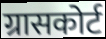
ग्रासकोर्ट